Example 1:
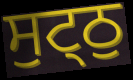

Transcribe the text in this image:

ਸੁਟ੍ਠੁ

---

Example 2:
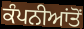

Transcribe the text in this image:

ਕੰਪਨੀਆਂਤੋਂ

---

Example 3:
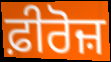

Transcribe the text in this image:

ਫ਼ੀਰੋਜ਼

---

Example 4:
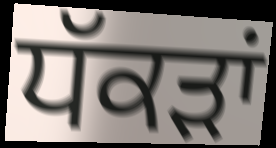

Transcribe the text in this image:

ਧੱਕੜਾਂ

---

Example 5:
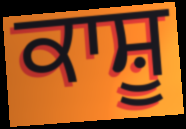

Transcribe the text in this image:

ਕਾਸ਼ੂ